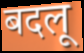
बदलू